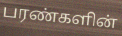
பரண்களின்